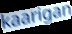
kaarigan